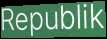
Republik